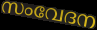
സംവേദന